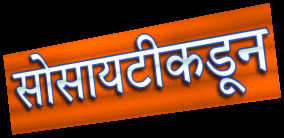
सोसायटीकडून